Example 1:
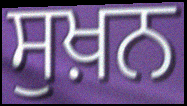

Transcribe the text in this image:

ਸੁਖ਼ਨ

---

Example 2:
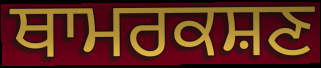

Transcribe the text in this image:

ਥਾਮਰਕਸ਼ਣ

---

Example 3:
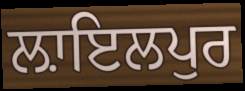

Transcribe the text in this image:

ਲ਼ਾਇਲਪੁਰ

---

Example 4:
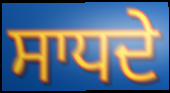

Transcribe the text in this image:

ਸਾਧਦੇ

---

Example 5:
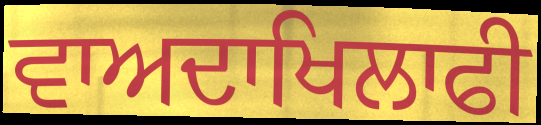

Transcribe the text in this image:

ਵਾਅਦਾਖਿਲਾਫੀ